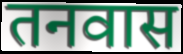
तनवास